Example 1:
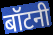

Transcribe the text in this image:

बॉटनी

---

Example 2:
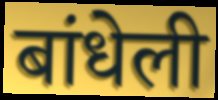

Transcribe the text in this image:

बांधेली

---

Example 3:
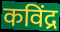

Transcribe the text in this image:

कविंद्र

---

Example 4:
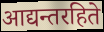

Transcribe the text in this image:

आद्यन्तरहिते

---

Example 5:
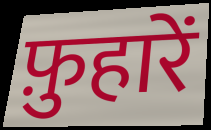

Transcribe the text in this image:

फ़ुहारें